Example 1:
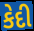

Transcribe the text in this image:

કેદી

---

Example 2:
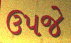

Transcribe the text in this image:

ઉપજે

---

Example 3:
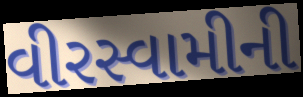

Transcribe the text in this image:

વીરસ્વામીની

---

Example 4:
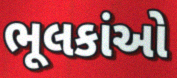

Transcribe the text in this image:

ભૂલકાંઓ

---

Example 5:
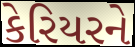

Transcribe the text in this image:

કેરિયરને